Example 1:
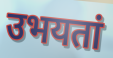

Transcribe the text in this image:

उभयतां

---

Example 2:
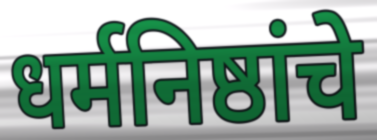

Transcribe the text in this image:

धर्मनिष्ठांचे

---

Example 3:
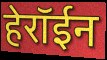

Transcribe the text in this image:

हेरॉईन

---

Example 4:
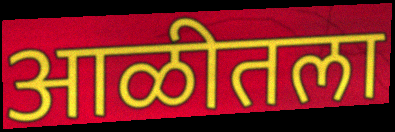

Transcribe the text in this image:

आळीतला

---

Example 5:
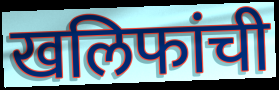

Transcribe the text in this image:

खलिफांची